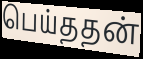
பெய்ததன்